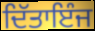
ਦਿੱਤਾਇੰਜ